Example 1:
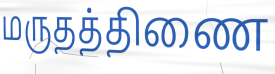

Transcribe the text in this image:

மருதத்திணை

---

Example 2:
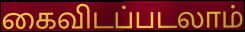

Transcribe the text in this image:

கைவிடப்படலாம்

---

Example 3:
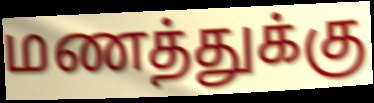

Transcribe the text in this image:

மணத்துக்கு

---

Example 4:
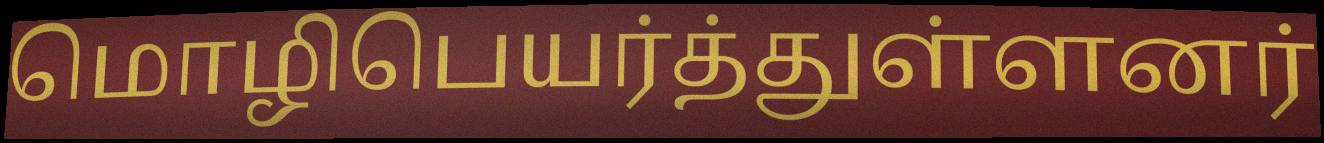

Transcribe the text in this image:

மொழிபெயர்த்துள்ளனர்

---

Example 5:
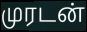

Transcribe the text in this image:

முரடன்